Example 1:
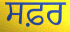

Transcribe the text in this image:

ਸਫ਼ਰ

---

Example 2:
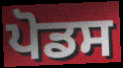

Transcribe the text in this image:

ਪੋਡਸ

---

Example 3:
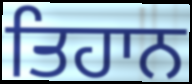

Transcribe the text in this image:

ਤਿਹਾਨ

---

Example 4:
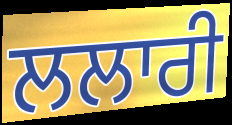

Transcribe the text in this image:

ਲਲਾਰੀ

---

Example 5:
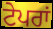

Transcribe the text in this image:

ਟੇਪਰਾਂ